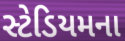
સ્ટેડિયમના